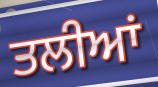
ਤਲੀਆਂ